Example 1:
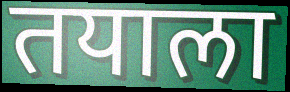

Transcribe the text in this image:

तयाला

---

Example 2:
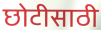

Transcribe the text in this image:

छोटीसाठी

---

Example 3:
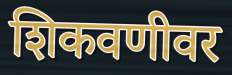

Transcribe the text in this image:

शिकवणीवर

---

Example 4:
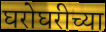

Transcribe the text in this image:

घरोघरीच्या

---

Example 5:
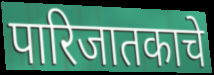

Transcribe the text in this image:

पारिजातकाचे